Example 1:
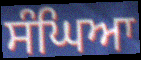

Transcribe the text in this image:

ਸੰਘਿਆ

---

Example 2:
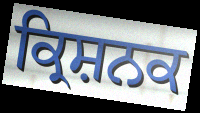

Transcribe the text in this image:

ਕ੍ਰਿਸ਼ਨਕ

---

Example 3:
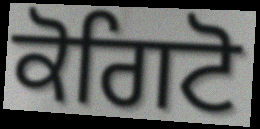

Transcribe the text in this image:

ਕੋਗਿਟੋ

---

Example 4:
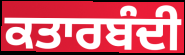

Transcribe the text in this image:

ਕਤਾਰਬੰਦੀ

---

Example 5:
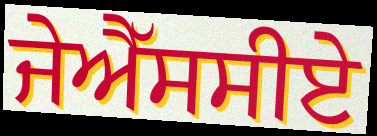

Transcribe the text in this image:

ਜੇਐੱਸਸੀਏ